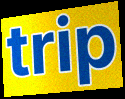
trip